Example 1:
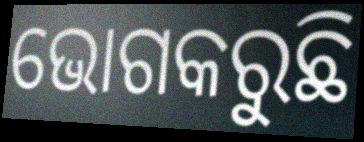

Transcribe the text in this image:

ଭୋଗକରୁଛି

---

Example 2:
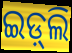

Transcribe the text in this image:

ଇଡ଼୍‌ଲି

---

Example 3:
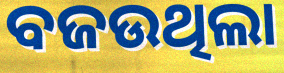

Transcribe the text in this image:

ବଜଉଥିଲା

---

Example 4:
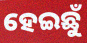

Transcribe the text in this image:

ହେଇଛୁଁ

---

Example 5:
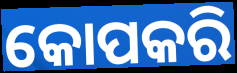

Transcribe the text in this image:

କୋପକରି